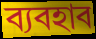
ব্যবহাব